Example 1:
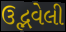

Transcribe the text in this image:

ઉદ્ભવેલી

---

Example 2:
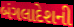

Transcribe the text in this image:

બંગલાદેશની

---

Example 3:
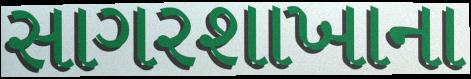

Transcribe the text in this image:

સાગરશાખાના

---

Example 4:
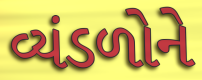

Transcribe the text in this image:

વ્યંડળોને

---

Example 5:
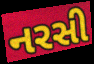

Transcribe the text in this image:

નરસી